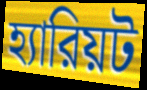
হ্যারিয়ট